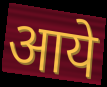
आये